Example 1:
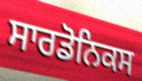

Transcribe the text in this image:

ਸਾਰਡੋਨਿਕਸ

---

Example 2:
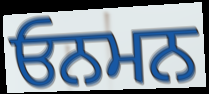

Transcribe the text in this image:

ਓਨਮਨ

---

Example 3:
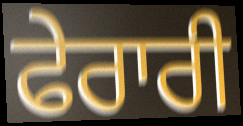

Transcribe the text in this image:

ਫੇਰਾਰੀ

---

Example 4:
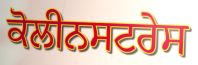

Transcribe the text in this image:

ਕੋਲੀਨਸਟਰੇਸ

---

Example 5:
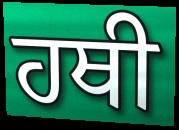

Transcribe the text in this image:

ਹਥੀ